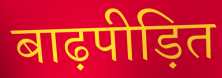
बाढ़पीड़ित